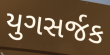
યુગસર્જક